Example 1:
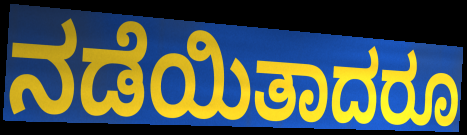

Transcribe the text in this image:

ನಡೆಯಿತಾದರೂ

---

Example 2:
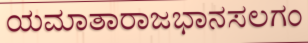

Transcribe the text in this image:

ಯಮಾತಾರಾಜಭಾನಸಲಗಂ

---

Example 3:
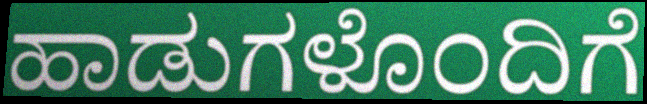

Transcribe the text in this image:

ಹಾಡುಗಳೊಂದಿಗೆ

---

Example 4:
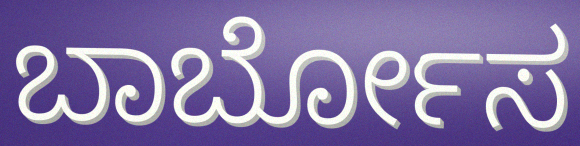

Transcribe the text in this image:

ಬಾರ್ಬೋಸ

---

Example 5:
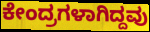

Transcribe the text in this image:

ಕೇಂದ್ರಗಳಾಗಿದ್ದವು